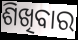
ଶିଖିବାର